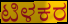
ಟಿಳಕರ